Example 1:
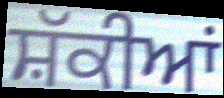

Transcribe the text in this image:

ਸ਼ੱਕੀਆਂ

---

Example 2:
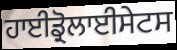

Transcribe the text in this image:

ਹਾਈਡ੍ਰੋਲਾਈਸੇਟਸ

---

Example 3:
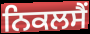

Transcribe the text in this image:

ਨਿਕਲਸੈਂ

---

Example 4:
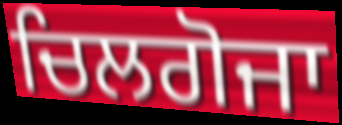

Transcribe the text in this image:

ਚਿਲਗੋਜਾ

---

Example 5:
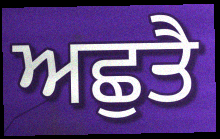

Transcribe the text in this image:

ਅਛੁਤੈ